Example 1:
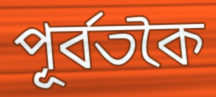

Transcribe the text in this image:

পূৰ্বতকৈ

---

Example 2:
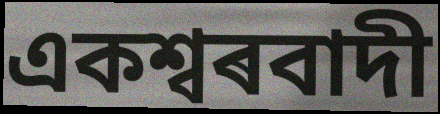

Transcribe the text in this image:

একশ্বৰবাদী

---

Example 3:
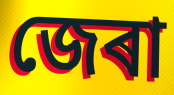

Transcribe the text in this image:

জেৰা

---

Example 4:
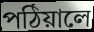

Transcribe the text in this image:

পঠিয়ালে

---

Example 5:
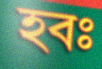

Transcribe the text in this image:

হবঃ